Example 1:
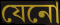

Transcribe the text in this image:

যেনো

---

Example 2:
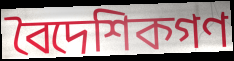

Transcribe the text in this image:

বৈদেশিকগণ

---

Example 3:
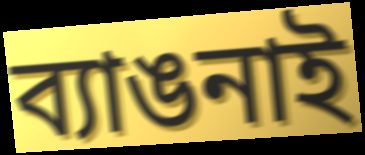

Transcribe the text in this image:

ব্যাঙনাই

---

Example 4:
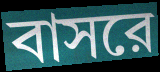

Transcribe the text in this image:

বাসরে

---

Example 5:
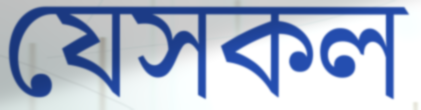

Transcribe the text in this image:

যেসকল